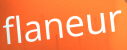
flaneur